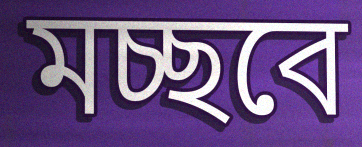
মচ্ছবে